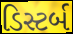
ડિસ્ટર્બ